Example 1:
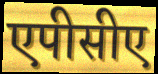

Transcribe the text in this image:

एपीसीए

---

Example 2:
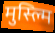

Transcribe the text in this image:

मुस्ल्मि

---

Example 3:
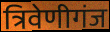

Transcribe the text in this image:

त्रिवेणीगंज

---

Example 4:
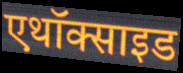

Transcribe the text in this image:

एथॉक्साइड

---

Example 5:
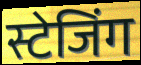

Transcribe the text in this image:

स्टेजिंग